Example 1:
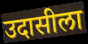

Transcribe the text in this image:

उदासीला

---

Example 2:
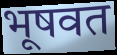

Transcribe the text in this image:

भूषवत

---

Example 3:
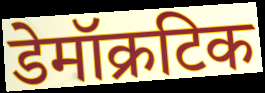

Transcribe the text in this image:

डेमॉक्रटिक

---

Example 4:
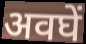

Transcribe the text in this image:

अवघें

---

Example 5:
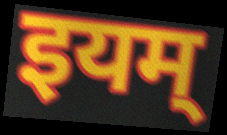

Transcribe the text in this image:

इयम्